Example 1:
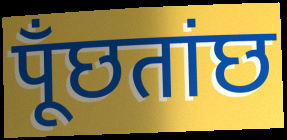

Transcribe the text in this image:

पूँछतांछ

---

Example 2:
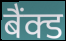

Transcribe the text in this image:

बैंक्ड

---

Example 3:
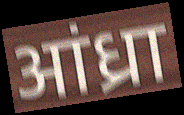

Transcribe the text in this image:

आंध्रा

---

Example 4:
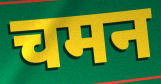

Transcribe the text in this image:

चमन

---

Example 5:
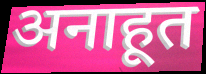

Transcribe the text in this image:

अनाहूत